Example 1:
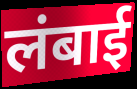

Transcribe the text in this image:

लंबाई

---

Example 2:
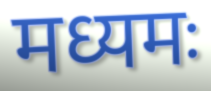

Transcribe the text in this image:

मध्यमः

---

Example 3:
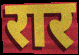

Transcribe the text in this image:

रार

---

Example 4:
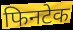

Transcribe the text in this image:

फिनटेक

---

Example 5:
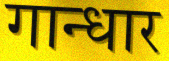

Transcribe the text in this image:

गान्धार